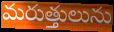
మరుత్తులును